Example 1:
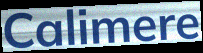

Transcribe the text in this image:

Calimere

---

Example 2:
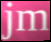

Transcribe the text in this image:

jm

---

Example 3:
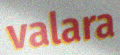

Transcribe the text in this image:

valara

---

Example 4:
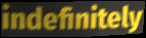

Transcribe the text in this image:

indefinitely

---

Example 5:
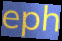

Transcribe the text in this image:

eph